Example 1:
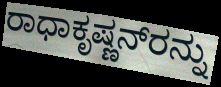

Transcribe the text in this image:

ರಾಧಾಕೃಷ್ಣನ್‌ರನ್ನು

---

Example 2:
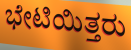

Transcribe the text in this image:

ಭೇಟಿಯಿತ್ತರು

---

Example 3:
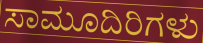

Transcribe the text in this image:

ಸಾಮೂದಿರಿಗಳು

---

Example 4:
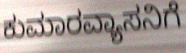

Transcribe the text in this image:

ಕುಮಾರವ್ಯಾಸನಿಗೆ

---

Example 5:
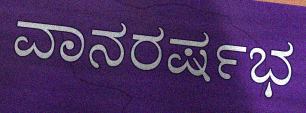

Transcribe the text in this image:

ವಾನರರ್ಷಭ